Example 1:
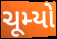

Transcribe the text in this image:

ચૂમ્યો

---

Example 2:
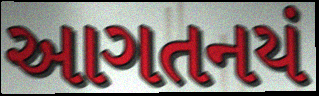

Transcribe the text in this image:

આગતનયં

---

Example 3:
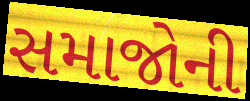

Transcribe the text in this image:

સમાજોની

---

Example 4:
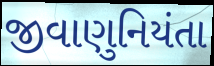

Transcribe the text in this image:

જીવાણુનિયંતા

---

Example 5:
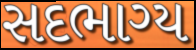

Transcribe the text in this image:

સદભાગ્ય